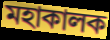
মহাকালক